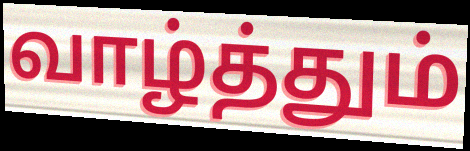
வாழ்த்தும்